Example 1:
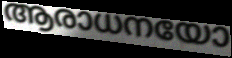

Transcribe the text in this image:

ആരാധനയോ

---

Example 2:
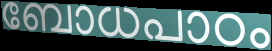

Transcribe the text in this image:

ബോധപാഠം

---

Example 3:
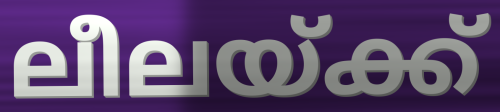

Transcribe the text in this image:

ലീലയ്ക്ക്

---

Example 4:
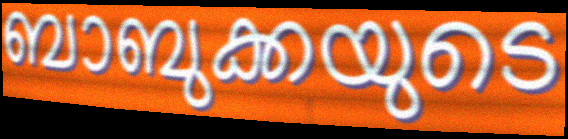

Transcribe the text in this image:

ബാബുക്കയുടെ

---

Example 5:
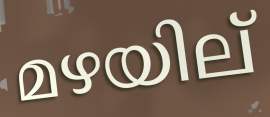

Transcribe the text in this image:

മഴയില്